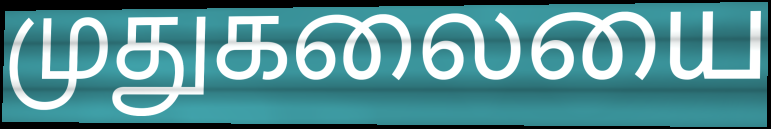
முதுகலையை